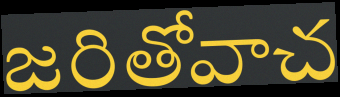
జరితోవాచ